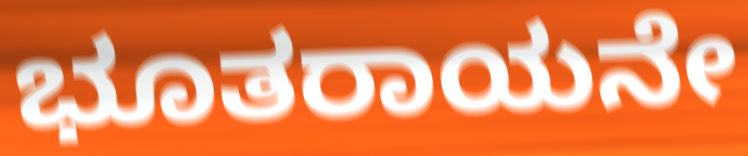
ಭೂತರಾಯನೇ